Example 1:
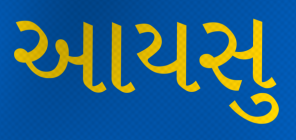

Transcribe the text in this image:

આયસુ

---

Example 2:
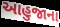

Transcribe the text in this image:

આહુજાના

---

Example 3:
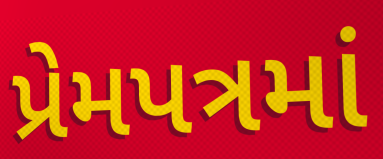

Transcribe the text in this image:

પ્રેમપત્રમાં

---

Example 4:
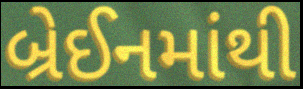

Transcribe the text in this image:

બ્રેઈનમાંથી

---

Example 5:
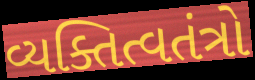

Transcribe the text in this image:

વ્યક્તિત્વતંત્રો